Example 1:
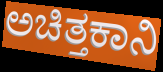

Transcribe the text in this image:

ಅಚಿತ್ತಕಾನಿ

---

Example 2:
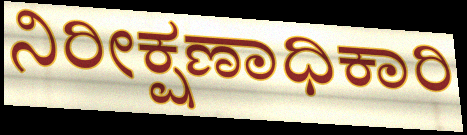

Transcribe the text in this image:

ನಿರೀಕ್ಷಣಾಧಿಕಾರಿ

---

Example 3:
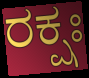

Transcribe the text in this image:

ರಕ್ಷಃ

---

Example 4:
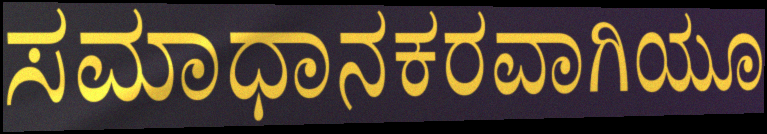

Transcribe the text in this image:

ಸಮಾಧಾನಕರವಾಗಿಯೂ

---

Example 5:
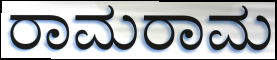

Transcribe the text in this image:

ರಾಮರಾಮ